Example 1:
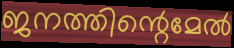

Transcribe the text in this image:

ജനത്തിന്റെമേൽ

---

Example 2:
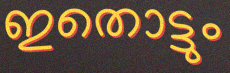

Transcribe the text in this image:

ഇതൊട്ടും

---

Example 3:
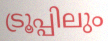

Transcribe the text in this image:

ട്രൂപ്പിലും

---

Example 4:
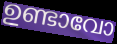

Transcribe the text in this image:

ഉണ്ടാവോ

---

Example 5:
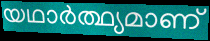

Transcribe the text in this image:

യഥാർത്ഥ്യമാണ്